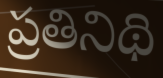
ప్రతినిథి